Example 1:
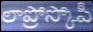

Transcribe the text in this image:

లాప్రోస్కోపీ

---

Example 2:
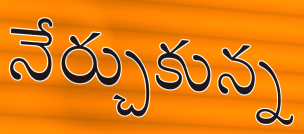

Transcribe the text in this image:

నేర్చుకున్న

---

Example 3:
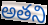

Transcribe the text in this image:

అతని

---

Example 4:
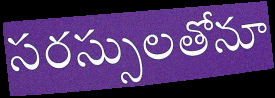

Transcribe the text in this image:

సరస్సులతోనూ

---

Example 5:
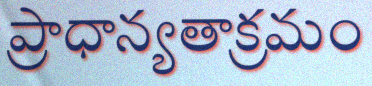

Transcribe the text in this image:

ప్రాధాన్యతాక్రమం